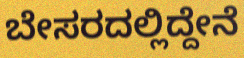
ಬೇಸರದಲ್ಲಿದ್ದೇನೆ